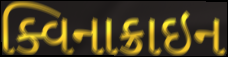
ક્વિનાક્રાઇન